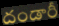
దండారీ